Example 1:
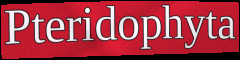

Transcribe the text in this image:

Pteridophyta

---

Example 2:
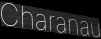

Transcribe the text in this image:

Charanau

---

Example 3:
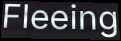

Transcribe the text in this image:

Fleeing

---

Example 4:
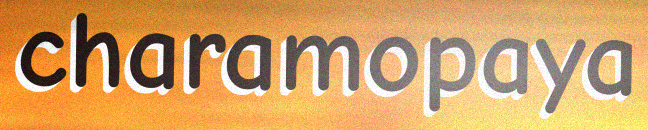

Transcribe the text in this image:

charamopaya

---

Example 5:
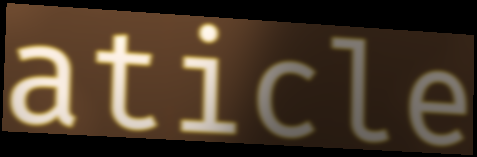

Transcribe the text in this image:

aticle